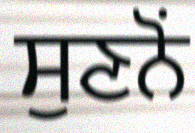
ਸੁਣਨੋਂ